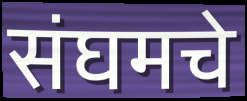
संघमचे